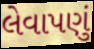
લેવાપણું